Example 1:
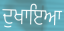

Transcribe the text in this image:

ਦੁਖਾਇਆ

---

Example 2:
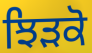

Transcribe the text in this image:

ਝਿੜਕੋ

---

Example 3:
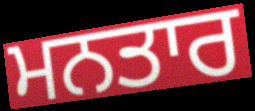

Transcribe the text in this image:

ਮਨਤਾਰ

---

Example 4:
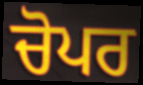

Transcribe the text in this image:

ਚੋਪਰ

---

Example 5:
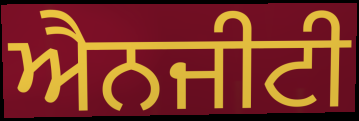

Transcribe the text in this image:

ਐਨਜੀਟੀ